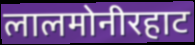
लालमोनीरहाट